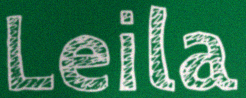
Leila